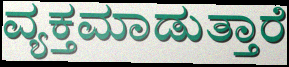
ವ್ಯಕ್ತಮಾಡುತ್ತಾರೆ